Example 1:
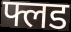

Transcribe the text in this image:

फ्लड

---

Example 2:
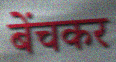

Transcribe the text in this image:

बेंचकर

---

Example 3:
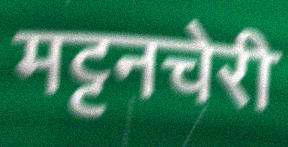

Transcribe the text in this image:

मट्टनचेरी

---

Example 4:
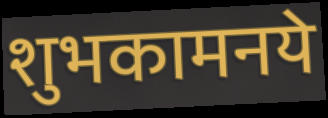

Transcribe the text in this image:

शुभकामनये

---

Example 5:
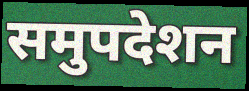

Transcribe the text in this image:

समुपदेशन